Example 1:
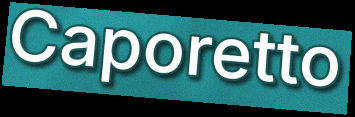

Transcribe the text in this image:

Caporetto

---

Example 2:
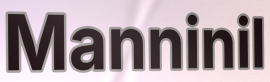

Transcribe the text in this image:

Manninil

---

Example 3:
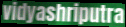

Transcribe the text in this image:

vidyashriputra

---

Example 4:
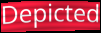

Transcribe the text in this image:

Depicted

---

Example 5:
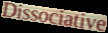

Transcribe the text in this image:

Dissociative